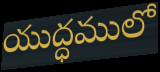
యుద్ధములో